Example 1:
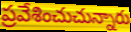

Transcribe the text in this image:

ప్రవేశించుచున్నారు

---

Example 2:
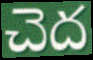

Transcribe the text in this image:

చెద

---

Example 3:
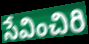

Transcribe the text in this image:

సేవించిరి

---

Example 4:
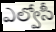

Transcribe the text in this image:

ఎల్వోసీ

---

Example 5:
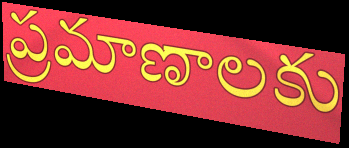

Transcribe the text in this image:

ప్రమాణాలకు